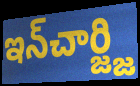
ఇన్‌చార్జ్జి